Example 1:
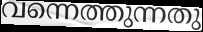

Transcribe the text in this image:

വന്നെത്തുന്നതു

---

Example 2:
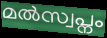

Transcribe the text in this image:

മൽസ്വപ്നം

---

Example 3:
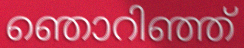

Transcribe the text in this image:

ഞൊറിഞ്ഞ്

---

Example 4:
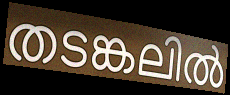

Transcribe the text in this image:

തടങ്കലിൽ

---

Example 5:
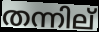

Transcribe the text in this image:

തന്നില്